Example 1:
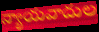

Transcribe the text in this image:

న్యాయవాదుల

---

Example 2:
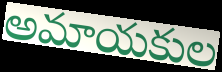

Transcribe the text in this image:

అమాయకుల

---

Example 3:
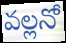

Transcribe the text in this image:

వల్లనో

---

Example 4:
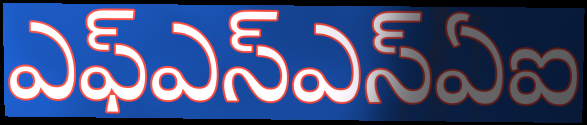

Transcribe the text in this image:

ఎఫ్ఎస్ఎస్ఏఐ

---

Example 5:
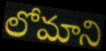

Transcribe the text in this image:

లోమాని